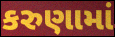
કરુણામાં